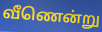
வீணென்று